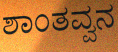
ಶಾಂತವ್ವನ